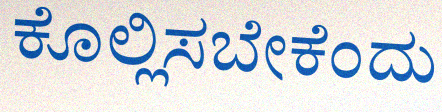
ಕೊಲ್ಲಿಸಬೇಕೆಂದು